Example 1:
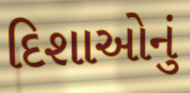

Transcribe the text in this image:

દિશાઓનું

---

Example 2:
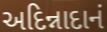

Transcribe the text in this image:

અદિન્નાદાનં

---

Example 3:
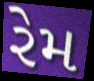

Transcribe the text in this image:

રેમ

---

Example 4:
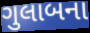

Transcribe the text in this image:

ગુલાબના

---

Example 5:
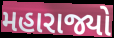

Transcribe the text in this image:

મહારાજ્યો